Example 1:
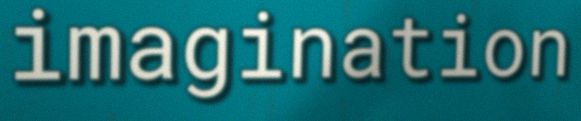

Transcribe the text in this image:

imagination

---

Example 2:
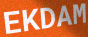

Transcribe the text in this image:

EKDAM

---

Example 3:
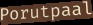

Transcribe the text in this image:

Porutpaal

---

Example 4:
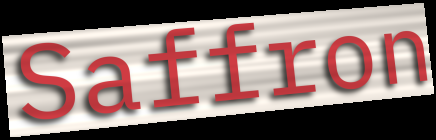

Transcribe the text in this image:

Saffron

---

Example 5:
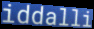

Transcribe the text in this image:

iddalli